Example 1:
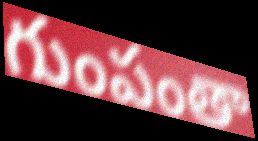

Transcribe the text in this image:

గుంపంతా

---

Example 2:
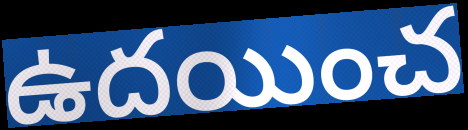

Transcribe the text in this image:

ఉదయించ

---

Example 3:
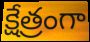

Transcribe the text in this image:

క్షేత్రంగా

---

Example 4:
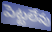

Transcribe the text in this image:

పెట్టలేవు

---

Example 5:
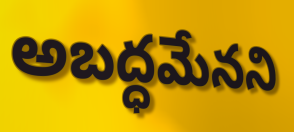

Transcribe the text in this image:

అబద్ధమేనని